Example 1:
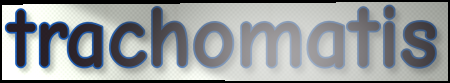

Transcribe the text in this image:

trachomatis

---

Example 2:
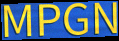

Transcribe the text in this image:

MPGN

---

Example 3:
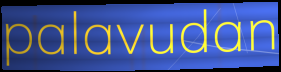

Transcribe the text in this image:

palavudan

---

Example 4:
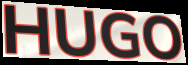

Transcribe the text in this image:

HUGO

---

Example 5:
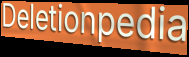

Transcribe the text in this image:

Deletionpedia